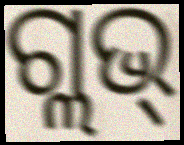
ଗ୍ଲଭ୍